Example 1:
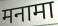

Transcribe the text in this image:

मनामा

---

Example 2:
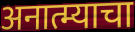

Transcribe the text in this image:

अनात्म्याचा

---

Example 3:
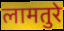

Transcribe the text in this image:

लामतुरे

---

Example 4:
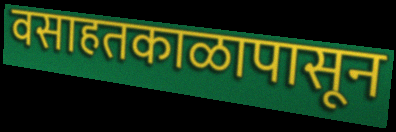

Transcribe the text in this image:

वसाहतकाळापासून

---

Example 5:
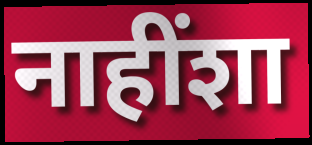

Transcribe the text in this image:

नाहींशा